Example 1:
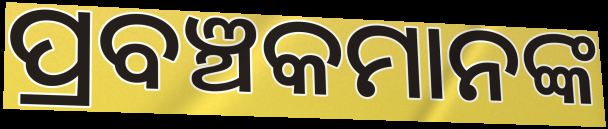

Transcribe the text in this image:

ପ୍ରବଞ୍ଚକମାନଙ୍କ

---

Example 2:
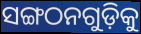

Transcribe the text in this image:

ସଙ୍ଗଠନଗୁଡ଼ିକୁ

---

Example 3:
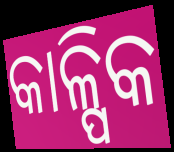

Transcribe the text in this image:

କାଳ୍ପିକ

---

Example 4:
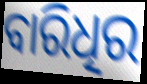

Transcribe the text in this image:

ବାରିଧିର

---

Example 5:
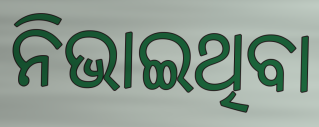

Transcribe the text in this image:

ନିଭାଇଥିବା